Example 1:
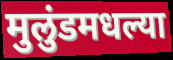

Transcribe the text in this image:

मुलुंडमधल्या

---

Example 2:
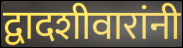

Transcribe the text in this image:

द्वादशीवारांनी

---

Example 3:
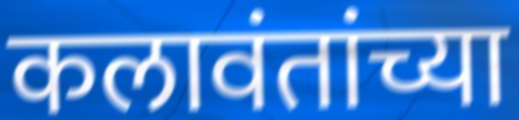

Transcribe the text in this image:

कलावंतांच्या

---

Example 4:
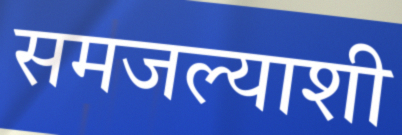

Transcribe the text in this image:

समजल्याशी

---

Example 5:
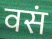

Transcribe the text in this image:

वसं